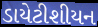
ડાયેટીશીયન